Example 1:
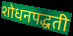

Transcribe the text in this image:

शोधनपद्धती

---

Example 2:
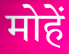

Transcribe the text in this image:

मोहें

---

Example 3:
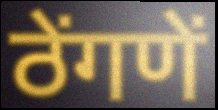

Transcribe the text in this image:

ठेंगणें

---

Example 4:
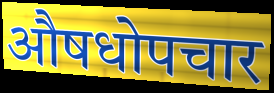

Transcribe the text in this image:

औषधोपचार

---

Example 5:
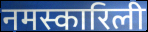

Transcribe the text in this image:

नमस्कारिली